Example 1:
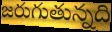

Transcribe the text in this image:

జరుగుతున్నది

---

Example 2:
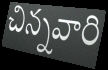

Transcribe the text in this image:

చిన్నవారి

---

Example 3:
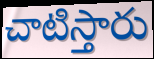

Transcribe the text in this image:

చాటిస్తారు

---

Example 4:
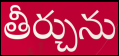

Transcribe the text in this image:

తీర్చును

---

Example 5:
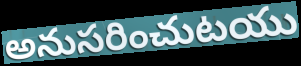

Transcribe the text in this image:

అనుసరించుటయు